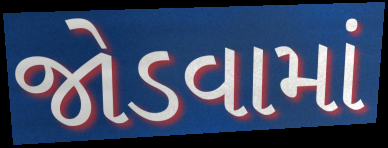
જોડવામાં